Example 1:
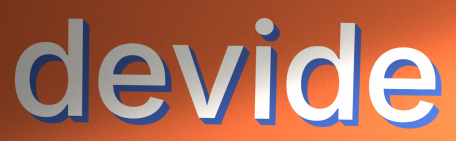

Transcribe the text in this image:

devide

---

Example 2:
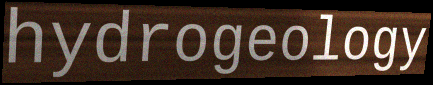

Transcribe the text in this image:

hydrogeology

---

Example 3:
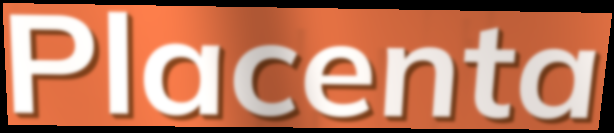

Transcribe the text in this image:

Placenta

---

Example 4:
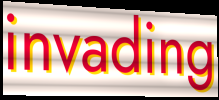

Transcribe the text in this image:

invading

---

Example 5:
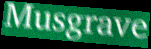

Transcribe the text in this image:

Musgrave